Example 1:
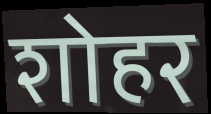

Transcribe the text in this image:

शोहर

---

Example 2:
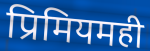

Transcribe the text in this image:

प्रिमियमही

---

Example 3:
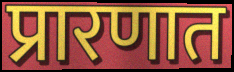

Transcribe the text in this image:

प्रारणात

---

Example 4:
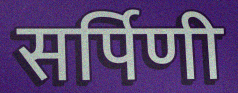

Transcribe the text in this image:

सर्पिणी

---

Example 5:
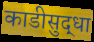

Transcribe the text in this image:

काडीसुद्धा